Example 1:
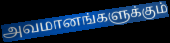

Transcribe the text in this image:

அவமானங்களுக்கும்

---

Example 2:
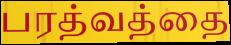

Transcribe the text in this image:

பரத்வத்தை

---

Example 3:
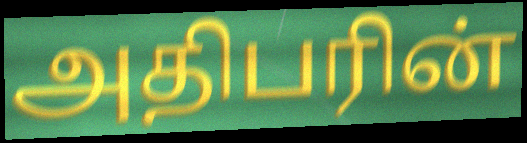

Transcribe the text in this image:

அதிபரின்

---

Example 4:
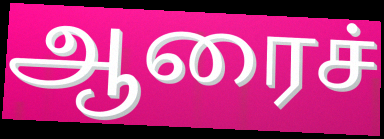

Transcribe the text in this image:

ஆரைச்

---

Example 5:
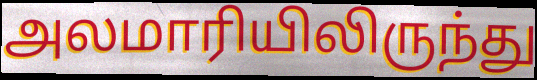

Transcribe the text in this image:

அலமாரியிலிருந்து